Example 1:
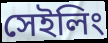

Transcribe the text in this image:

সেইলিং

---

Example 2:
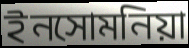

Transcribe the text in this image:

ইনসোমনিয়া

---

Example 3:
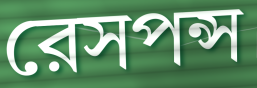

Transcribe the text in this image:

রেসপন্স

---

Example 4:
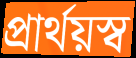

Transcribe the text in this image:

প্রার্থয়স্ব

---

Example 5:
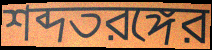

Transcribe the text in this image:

শব্দতরঙ্গের